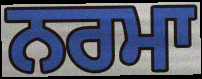
ਨਰਮਾ